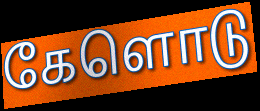
கேளொடு